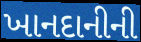
ખાનદાનીની